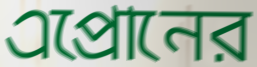
এপ্রোনের